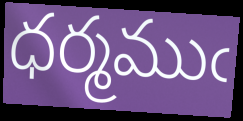
ధర్మముఁ